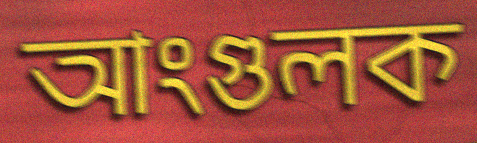
আংগুলক